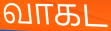
வாகட